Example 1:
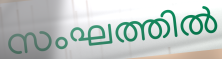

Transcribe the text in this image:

സംഘത്തിൽ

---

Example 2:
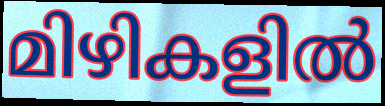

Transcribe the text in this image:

മിഴികളിൽ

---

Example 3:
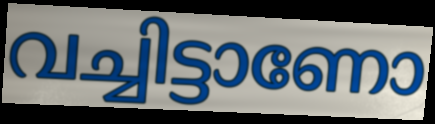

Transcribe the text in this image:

വച്ചിട്ടാണോ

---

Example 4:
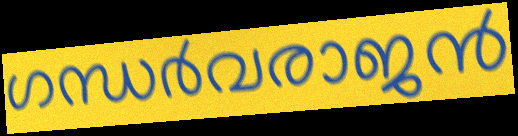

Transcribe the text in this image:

ഗന്ധർവരാജൻ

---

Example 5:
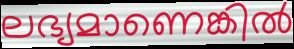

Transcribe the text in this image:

ലഭ്യമാണെങ്കിൽ